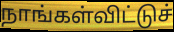
நாங்கள்விட்டுச்